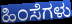
ಹಿಂಸೆಗಳು